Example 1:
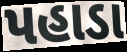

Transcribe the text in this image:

પહાડા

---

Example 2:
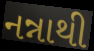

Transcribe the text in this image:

નન્નાથી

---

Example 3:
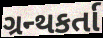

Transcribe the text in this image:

ગ્રન્થકર્તા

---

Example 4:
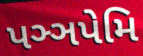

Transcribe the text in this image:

પઞ્ઞપેમિ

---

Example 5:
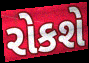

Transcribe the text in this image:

રોકશે